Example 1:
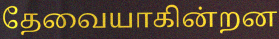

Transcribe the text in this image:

தேவையாகின்றன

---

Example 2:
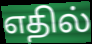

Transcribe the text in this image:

எதில்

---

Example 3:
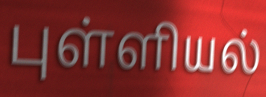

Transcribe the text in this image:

புள்ளியல்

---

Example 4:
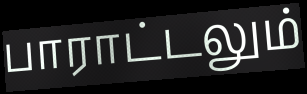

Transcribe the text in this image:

பாராட்டலும்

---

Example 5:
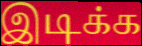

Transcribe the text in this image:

இடிக்க